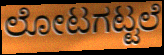
ಲೋಟಗಟ್ಟಲೆ